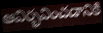
ఆవిర్భవించడానికి